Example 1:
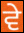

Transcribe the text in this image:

ਵੇ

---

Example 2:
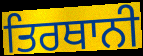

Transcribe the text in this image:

ਤਿਰਥਾਨੀ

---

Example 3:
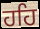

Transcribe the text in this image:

ਹਹਿ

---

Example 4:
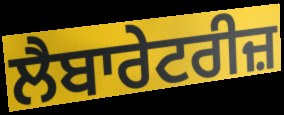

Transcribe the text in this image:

ਲੈਬਾਰੇਟਰੀਜ਼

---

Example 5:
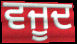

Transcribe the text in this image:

ਵਜੂਦ